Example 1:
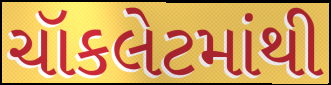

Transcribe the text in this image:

ચૉકલેટમાંથી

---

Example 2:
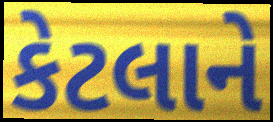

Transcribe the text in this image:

કેટલાને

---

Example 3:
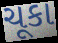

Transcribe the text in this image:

ચૂકા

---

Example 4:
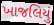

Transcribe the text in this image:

ખાજલિયું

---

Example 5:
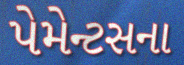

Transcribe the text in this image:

પેમેન્ટસના